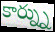
కార్న్ను